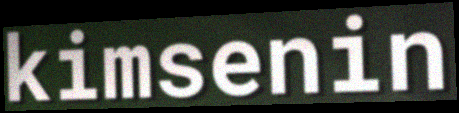
kimsenin